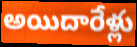
అయిదారేళ్లు